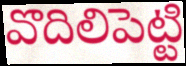
వొదిలిపెట్టి